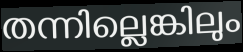
തന്നില്ലെങ്കിലും